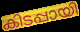
കിടപ്പായി